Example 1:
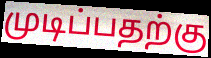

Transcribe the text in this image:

முடிப்பதற்கு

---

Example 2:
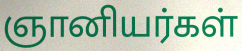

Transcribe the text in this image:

ஞானியர்கள்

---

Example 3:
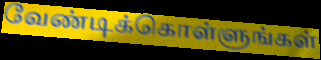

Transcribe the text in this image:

வேண்டிக்கொள்ளுங்கள்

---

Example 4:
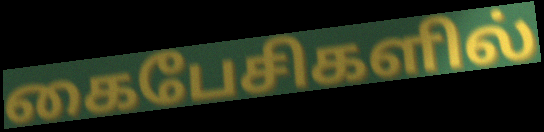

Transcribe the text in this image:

கைபேசிகளில்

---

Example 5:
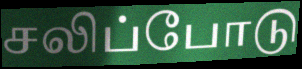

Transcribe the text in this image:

சலிப்போடு